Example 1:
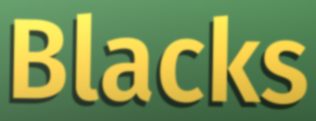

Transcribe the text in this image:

Blacks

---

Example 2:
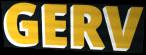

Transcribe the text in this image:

GERV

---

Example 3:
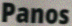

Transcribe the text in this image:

Panos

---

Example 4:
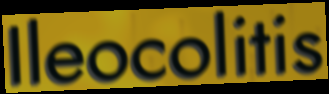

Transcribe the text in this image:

Ileocolitis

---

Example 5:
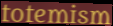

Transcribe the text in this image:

totemism